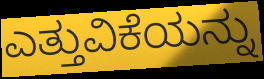
ಎತ್ತುವಿಕೆಯನ್ನು